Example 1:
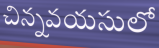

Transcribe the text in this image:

చిన్నవయసులో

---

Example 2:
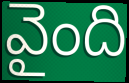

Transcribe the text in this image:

వైంది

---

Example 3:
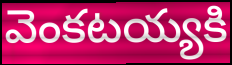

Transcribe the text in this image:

వెంకటయ్యకి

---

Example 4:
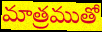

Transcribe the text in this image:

మాత్రముతో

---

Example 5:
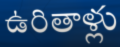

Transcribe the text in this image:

ఉరితాళ్లు